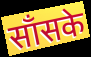
साँसके